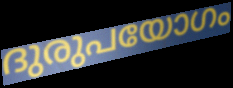
ദുരുപയോഗം